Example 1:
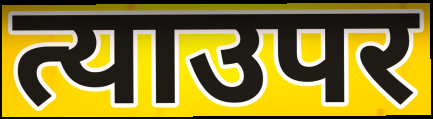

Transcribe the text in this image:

त्याउपर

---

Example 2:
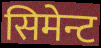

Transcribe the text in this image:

सिमेन्ट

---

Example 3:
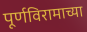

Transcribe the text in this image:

पूर्णविरामाच्या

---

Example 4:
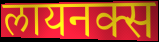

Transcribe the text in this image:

लायनक्स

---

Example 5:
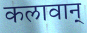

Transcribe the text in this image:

कलावान्